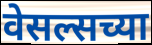
वेसल्सच्या